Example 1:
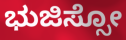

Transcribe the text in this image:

ಭುಜಿಸ್ಸೋ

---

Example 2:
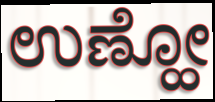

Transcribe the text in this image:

ಉಣ್ಹೋ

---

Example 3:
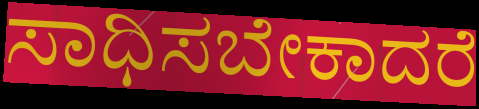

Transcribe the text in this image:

ಸಾಧಿಸಬೇಕಾದರೆ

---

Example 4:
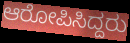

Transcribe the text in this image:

ಆರೋಪಿಸಿದ್ದರು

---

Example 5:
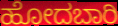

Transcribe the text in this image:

ಹೋದಬಾರಿ